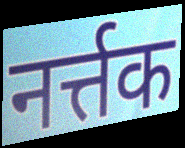
नर्त्तक